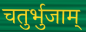
चतुर्भुजाम्